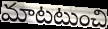
మాటటుంచి